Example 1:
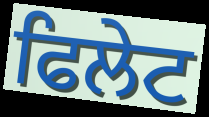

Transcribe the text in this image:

ਫਿਲੇਟ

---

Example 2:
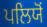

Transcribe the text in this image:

ਪਲਿਯੋਂ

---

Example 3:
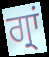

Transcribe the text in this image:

ਗ੍ਰਾਂ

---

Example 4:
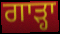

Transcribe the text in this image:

ਗਾੜ੍ਹਾ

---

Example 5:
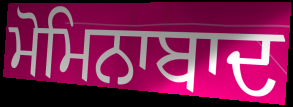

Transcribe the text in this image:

ਮੋਮਿਨਾਬਾਦ